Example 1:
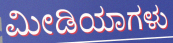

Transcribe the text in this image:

ಮೀಡಿಯಾಗಳು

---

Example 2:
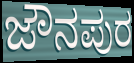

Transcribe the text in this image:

ಜೌನಪುರ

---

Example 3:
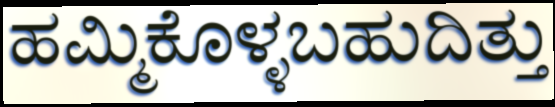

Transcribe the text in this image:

ಹಮ್ಮಿಕೊಳ್ಳಬಹುದಿತ್ತು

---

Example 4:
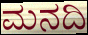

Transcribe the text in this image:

ಮನದಿ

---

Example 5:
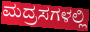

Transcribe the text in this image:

ಮದ್ರಸಗಳಲ್ಲಿ